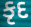
કૃદ